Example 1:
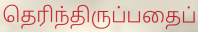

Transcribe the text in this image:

தெரிந்திருப்பதைப்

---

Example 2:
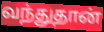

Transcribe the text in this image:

வந்துதான்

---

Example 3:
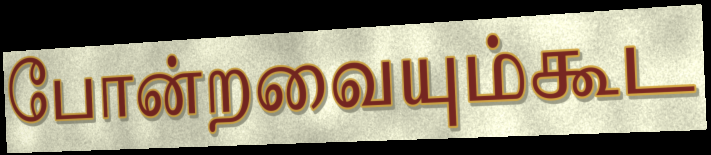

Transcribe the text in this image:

போன்றவையும்கூட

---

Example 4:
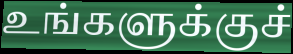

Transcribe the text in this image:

உங்களுக்குச்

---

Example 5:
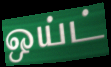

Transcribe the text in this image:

ஒய்ட்